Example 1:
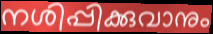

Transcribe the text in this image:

നശിപ്പിക്കുവാനും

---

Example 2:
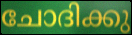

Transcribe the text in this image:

ചോദിക്കു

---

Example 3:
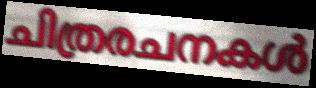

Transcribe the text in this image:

ചിത്രരചനകൾ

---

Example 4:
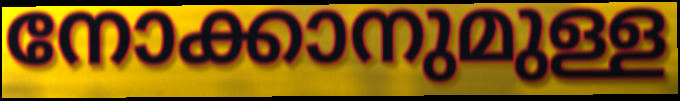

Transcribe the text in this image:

നോക്കാനുമുള്ള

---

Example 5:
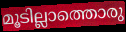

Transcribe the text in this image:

മൂടില്ലാത്തൊരു